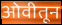
ओवीतून